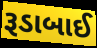
રૂડાબાઈ